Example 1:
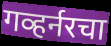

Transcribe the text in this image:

गव्हर्नरचा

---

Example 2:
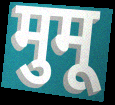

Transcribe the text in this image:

मुमू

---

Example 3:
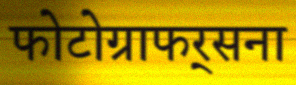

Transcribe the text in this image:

फोटोग्राफर्सना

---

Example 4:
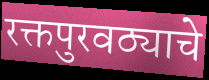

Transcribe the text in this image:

रक्तपुरवठ्याचे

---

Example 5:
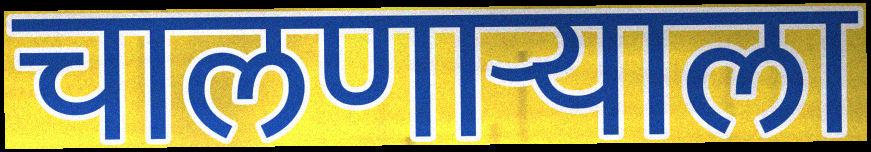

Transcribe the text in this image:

चालणाऱ्याला